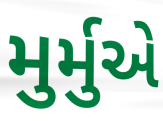
મુર્મુએ